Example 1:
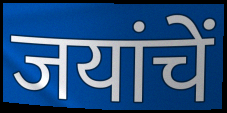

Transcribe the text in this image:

जयांचें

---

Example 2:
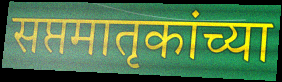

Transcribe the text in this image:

सप्तमातृकांच्या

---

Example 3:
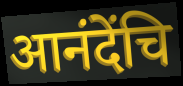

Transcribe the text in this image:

आनंदेंचि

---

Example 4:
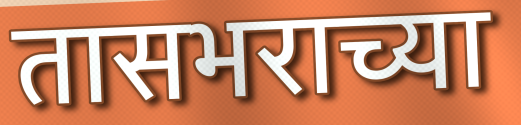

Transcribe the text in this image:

तासभराच्या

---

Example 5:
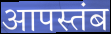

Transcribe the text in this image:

आपस्तंब